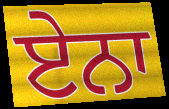
ਏਨਾ